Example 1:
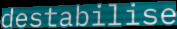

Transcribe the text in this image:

destabilise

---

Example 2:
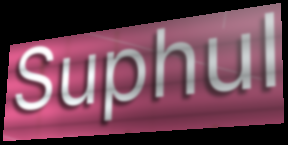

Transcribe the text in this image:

Suphul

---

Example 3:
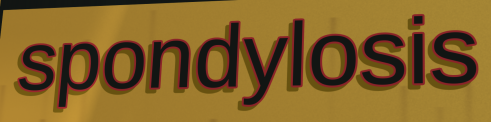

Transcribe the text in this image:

spondylosis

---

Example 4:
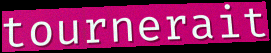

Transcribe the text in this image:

tournerait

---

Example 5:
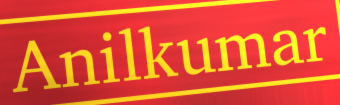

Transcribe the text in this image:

Anilkumar